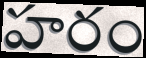
హరం